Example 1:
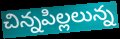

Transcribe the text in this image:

చిన్నపిల్లలున్న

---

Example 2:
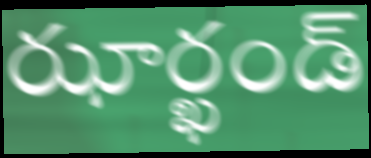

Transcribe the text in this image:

ఝార్ఖండ్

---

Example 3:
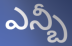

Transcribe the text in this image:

ఎన్బీ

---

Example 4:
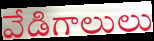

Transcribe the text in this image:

వేడిగాలులు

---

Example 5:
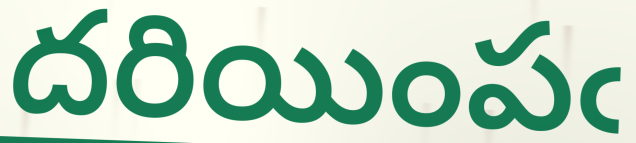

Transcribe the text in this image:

దరియింపఁ